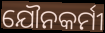
ଯୌନକର୍ମୀ